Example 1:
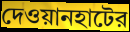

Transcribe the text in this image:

দেওয়ানহাটের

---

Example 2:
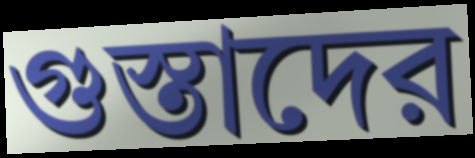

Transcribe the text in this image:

গুস্তাদের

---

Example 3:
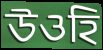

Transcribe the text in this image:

উওহি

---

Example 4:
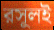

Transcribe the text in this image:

রসূলই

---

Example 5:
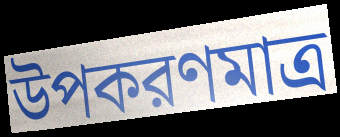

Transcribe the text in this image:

উপকরণমাত্র